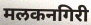
मलकनगिरी